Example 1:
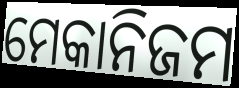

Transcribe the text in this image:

ମେକାନିଜମ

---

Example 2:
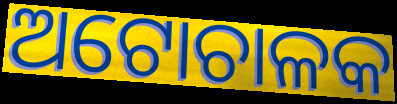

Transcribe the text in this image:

ଅଟୋଚାଳକ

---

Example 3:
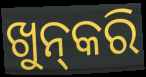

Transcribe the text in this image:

ଖୁନ୍‍କରି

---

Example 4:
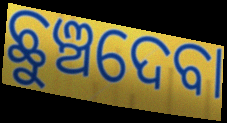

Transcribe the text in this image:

ଛୁଞ୍ଚଦେବା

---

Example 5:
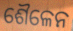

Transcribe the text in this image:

ଶୈଳେନ